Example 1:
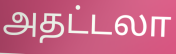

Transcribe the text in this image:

அதட்டலா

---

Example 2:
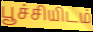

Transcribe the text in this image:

பூச்சியிடம்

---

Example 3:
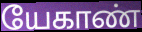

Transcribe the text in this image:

யேகாண்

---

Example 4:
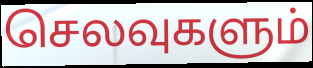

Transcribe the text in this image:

செலவுகளும்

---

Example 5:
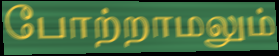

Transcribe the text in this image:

போற்றாமலும்